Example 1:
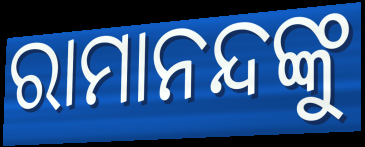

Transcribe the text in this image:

ରାମାନନ୍ଦଙ୍କୁ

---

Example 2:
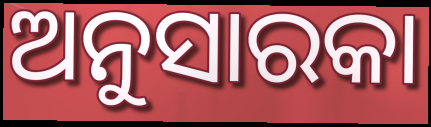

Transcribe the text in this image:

ଅନୁସାରକା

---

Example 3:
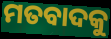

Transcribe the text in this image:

ମତବାଦକୁ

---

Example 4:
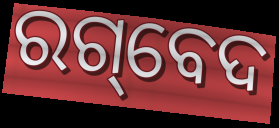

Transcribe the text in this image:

ରଗ୍‌ବେଦ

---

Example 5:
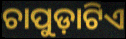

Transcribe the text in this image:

ଚାପୁଡ଼ାଟିଏ